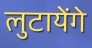
लुटायेंगे